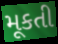
મૂકતી